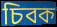
চিবক